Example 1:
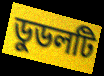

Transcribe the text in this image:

ডুডলটি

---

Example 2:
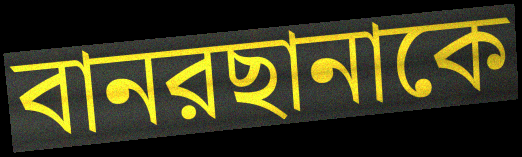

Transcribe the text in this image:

বানরছানাকে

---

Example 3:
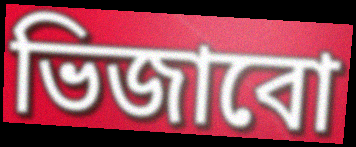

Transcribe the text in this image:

ভিজাবো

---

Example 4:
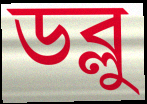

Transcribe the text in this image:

ডব্লু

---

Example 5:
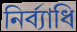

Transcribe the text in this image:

নির্ব্যাধি